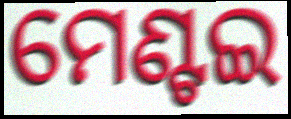
ମେଣ୍ଟଇ